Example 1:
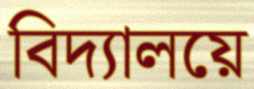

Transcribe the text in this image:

বিদ্যালয়ে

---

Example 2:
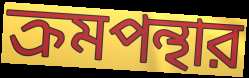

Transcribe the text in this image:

ক্রমপন্থার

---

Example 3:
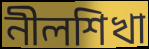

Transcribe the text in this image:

নীলশিখা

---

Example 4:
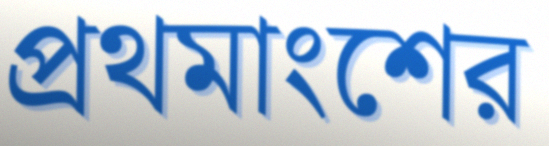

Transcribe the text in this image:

প্রথমাংশের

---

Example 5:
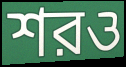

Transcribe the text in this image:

শরও